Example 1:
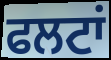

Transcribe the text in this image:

ਫਲਟਾਂ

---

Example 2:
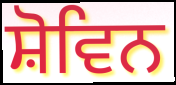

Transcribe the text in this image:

ਸ਼ੋਵਿਨ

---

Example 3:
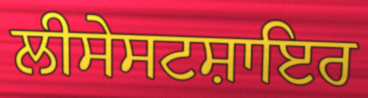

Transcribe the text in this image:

ਲੀਸੇਸਟਸ਼ਾਇਰ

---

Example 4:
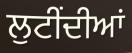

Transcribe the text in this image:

ਲੁਟੀਂਦੀਆਂ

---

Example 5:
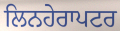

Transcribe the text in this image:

ਲਿਨਹੇਰਾਪਟਰ